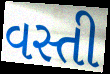
વસ્તી